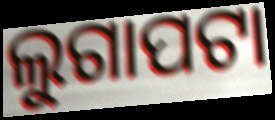
ଲୁଗାପଟା